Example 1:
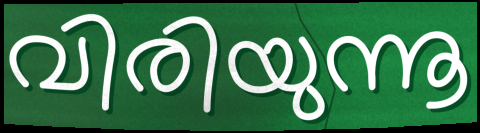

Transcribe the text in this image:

വിരിയുന്നൂ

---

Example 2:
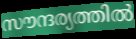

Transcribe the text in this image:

സൗന്ദര്യത്തിൽ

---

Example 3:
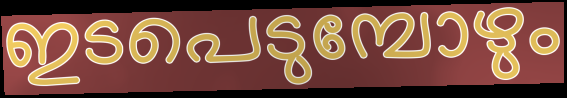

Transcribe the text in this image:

ഇടപെടുമ്പോഴും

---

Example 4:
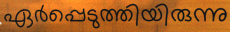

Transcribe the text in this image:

ഏർപ്പെടുത്തിയിരുന്നു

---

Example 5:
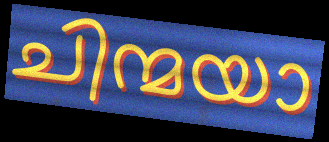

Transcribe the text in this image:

ചിന്മയാ